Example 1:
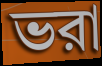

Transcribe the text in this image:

ভরা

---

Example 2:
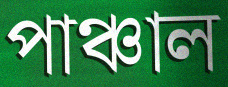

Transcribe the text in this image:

পাঞ্চাল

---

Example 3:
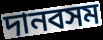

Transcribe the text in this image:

দানবসম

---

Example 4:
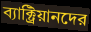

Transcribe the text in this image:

ব্যাক্ট্রিয়ানদের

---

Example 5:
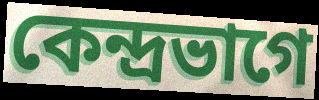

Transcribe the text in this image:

কেন্দ্রভাগে